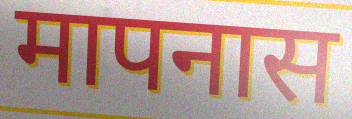
मापनास